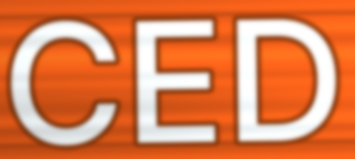
CED